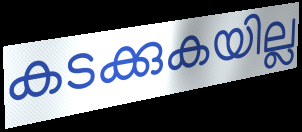
കടക്കുകയില്ല